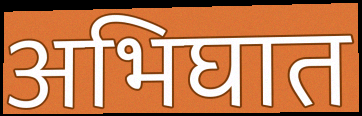
अभिघात